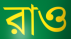
রাও